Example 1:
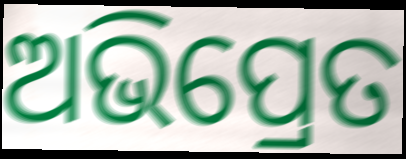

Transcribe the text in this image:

ଅଭିପ୍ରେତ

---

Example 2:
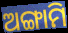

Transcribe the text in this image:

ଅଙ୍ଗାମି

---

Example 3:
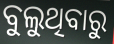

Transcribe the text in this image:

ବୁଲୁଥିବାରୁ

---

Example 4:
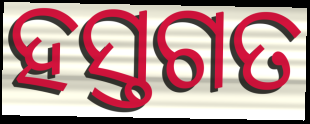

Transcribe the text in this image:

ହସ୍ତଗତ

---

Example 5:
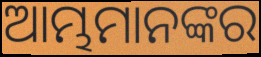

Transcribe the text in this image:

ଆମ୍ଭମାନଙ୍କର